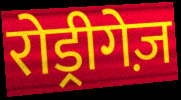
रोड्रीगेज़